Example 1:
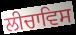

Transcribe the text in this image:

ਲੀਚਾਵਿਸ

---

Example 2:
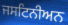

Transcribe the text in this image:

ਜਸਟਿਨੀਅਨ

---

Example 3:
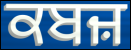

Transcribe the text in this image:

ਕਬਜ਼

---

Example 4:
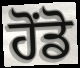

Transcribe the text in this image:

ਹੋਂਡੋ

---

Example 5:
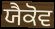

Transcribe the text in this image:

ਯੈਕੋਵ